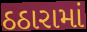
ઠઠારામાં